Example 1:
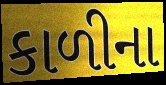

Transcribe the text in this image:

કાળીના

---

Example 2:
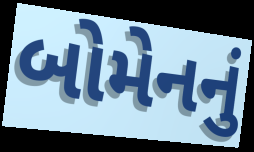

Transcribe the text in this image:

બોમેનનું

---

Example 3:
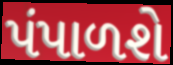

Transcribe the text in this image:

પંપાળશે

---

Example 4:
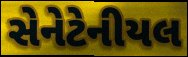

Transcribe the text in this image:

સેનેટેનીયલ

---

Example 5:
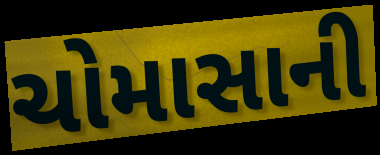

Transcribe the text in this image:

ચોમાસાની